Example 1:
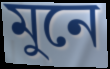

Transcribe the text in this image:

মুনে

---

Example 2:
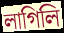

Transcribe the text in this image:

লাগিলি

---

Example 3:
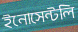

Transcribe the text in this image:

ইনোসেন্টলি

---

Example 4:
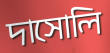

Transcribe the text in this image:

দাসোলি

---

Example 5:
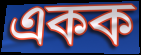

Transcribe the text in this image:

একক